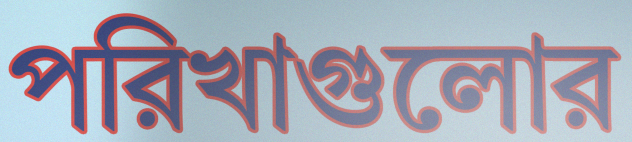
পরিখাগুলোর